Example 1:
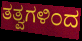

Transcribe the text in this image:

ತತ್ವಗಳಿಂದ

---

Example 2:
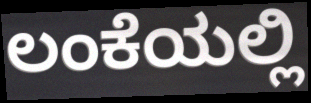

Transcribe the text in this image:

ಲಂಕೆಯಲ್ಲಿ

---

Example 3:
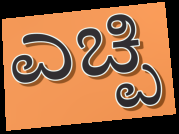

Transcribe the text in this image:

ಎಚ್ಪಿ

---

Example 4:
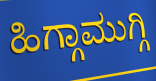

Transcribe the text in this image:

ಹಿಗ್ಗಾಮುಗ್ಗಿ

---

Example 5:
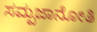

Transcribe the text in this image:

ಸಮ್ಪಜಾನೋತಿ